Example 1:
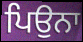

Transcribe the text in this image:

ਪਿਉਨਾ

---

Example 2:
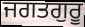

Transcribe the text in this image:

ਜਗਤਗੁਰੂ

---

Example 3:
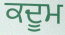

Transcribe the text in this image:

ਕਦੂਮ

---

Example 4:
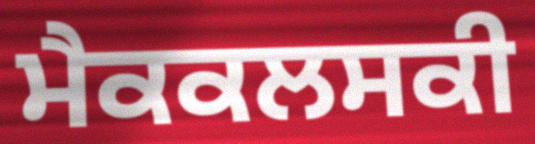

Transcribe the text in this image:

ਮੈਕਕਲਸਕੀ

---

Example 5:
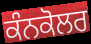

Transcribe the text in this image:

ਕੰਨਕੋਲਰ